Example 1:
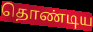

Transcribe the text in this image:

தொண்டிய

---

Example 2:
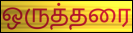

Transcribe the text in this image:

ஒருத்தரை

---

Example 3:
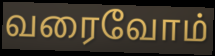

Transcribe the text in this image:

வரைவோம்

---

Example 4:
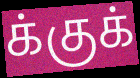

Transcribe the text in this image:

க்குக்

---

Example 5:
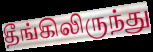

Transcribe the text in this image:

தீங்கிலிருந்து